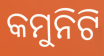
କମୁନିଟି